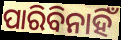
ପାରିବିନାହିଁ